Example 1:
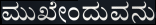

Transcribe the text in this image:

ಮುಖೇಂದುವನು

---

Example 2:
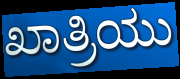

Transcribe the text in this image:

ಖಾತ್ರಿಯು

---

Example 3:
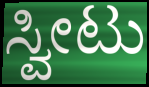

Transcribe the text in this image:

ಸ್ವೀಟು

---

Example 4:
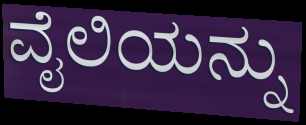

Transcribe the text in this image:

ವೈಲಿಯನ್ನು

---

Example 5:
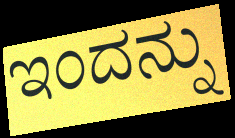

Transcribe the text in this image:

ಇಂದನ್ನು